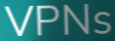
VPNs